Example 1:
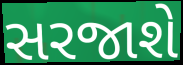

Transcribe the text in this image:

સરજાશે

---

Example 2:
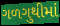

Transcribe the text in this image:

ગળગુથીમાં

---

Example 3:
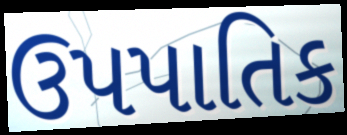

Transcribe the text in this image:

ઉપપાતિક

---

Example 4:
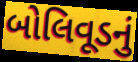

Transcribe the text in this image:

બોલિવૂડનું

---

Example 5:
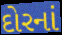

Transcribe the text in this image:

દોરનાં